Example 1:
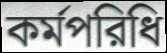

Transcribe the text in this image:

কর্মপরিধি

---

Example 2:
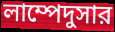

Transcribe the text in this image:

লাম্পেদুসার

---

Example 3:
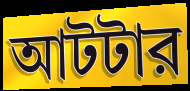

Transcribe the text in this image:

আটটার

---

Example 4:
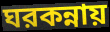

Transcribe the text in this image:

ঘরকন্নায়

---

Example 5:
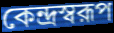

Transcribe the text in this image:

কেন্দ্রস্বরূপ